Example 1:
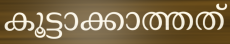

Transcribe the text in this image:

കൂട്ടാക്കാത്തത്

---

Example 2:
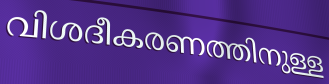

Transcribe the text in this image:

വിശദീകരണത്തിനുള്ള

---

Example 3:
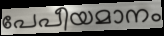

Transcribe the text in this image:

പേപീയമാനം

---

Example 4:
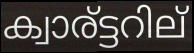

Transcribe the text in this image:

ക്വാര്ട്ടറില്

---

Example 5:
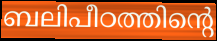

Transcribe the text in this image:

ബലിപീഠത്തിന്റെ